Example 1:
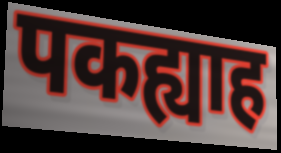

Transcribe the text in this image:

पकह्याह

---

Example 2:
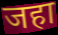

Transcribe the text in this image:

जहा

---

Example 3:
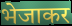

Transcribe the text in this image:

भेजाकर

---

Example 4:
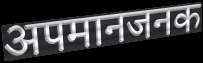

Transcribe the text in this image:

अपमानजनक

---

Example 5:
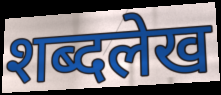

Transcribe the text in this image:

शब्दलेख